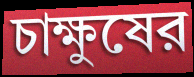
চাক্ষুষের